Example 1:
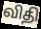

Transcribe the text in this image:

விதி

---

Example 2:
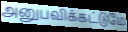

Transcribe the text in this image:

அனுபவிக்கட்டுமே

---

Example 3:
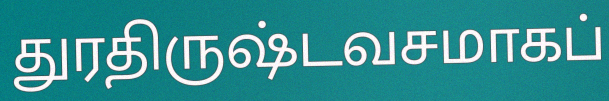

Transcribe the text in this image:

துரதிருஷ்டவசமாகப்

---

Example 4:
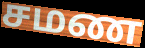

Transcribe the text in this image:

சமண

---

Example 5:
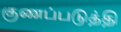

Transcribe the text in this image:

குணப்படுத்தி